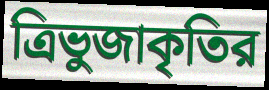
ত্রিভুজাকৃতির